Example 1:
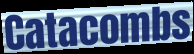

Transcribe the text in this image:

Catacombs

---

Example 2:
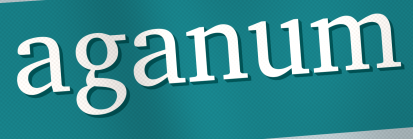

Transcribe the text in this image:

aganum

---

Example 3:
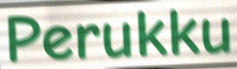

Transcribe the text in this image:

Perukku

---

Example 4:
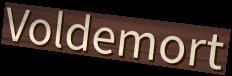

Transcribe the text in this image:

Voldemort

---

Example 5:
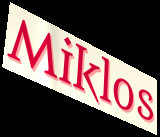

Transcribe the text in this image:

Miklos